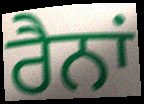
ਰੈਨਾਂ